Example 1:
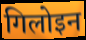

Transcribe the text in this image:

गिलोइन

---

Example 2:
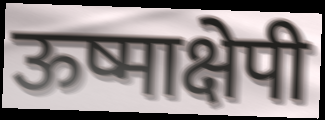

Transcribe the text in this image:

ऊष्माक्षेपी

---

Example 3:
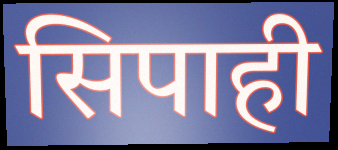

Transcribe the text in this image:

सिपाही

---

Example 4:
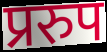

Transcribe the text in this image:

प्ररुप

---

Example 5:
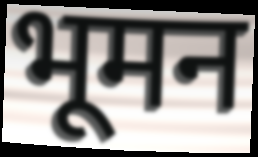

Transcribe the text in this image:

भूमन